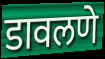
डावलणे